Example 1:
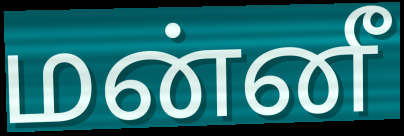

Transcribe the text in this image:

மன்னீ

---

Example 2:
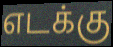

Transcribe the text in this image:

எடக்கு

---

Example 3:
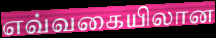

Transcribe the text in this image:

எவ்வகையிலான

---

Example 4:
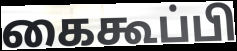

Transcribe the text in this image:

கைகூப்பி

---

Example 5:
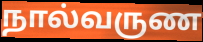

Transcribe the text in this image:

நால்வருண